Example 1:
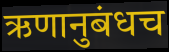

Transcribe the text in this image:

ऋणानुबंधच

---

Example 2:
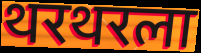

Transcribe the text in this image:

थरथरला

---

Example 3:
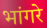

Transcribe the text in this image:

भांगरे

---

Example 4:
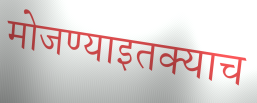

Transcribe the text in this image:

मोजण्याइतक्याच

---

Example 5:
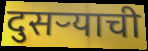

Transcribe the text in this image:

दुसऱ्याची